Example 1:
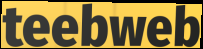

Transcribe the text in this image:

teebweb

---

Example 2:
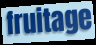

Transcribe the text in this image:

fruitage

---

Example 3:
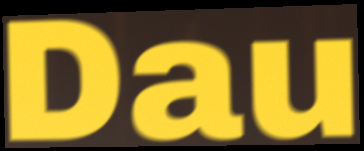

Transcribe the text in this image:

Dau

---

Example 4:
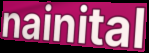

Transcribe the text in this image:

nainital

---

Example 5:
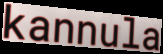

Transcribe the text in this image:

kannula